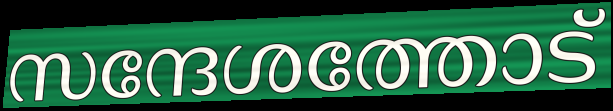
സന്ദേശത്തോട്